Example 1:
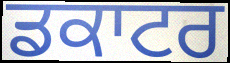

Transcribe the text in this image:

ਡਕਾਟਰ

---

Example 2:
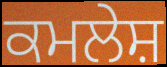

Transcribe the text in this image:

ਕਮਲੇਸ਼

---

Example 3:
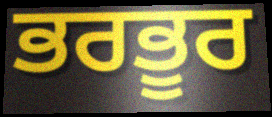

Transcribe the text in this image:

ਭਰਭੂਰ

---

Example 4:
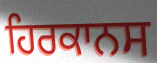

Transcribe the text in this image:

ਹਿਰਕਾਨਸ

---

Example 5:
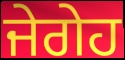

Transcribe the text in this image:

ਜੇਗੇਹ